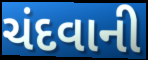
ચંદવાની